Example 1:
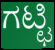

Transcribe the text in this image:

ಗಟ್ಟಿ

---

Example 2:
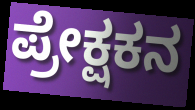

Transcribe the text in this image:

ಪ್ರೇಕ್ಷಕನ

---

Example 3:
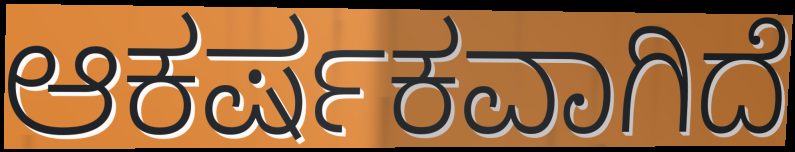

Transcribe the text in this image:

ಆಕರ್ಷಕವಾಗಿದೆ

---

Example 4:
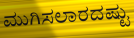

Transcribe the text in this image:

ಮುಗಿಸಲಾರದಷ್ಟು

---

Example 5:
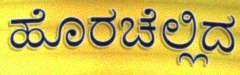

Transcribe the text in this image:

ಹೊರಚೆಲ್ಲಿದ